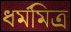
ধর্মমিত্র